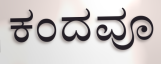
ಕಂದವೂ